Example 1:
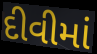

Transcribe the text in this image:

દીવીમાં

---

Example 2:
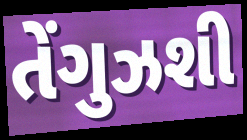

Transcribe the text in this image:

તેંગુઝશી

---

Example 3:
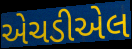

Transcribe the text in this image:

એચડીએલ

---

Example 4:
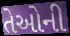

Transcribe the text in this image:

તેઓની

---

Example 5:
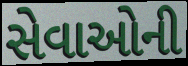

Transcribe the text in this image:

સેવાઓની